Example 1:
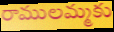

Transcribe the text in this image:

రాములమ్మకు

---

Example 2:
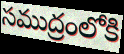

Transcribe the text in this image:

సముద్రంలోకి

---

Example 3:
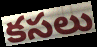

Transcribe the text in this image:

కసలు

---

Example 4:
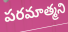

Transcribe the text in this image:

పరమాత్మని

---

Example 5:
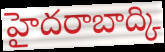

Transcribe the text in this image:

హైదరాబాద్కి